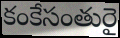
కంకేసంతురై